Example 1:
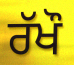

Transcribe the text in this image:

ਰੱਖੌ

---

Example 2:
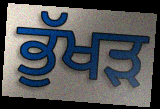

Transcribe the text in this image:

ਭੁੱਖੜ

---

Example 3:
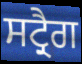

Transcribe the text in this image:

ਸਟ੍ਰੈਗ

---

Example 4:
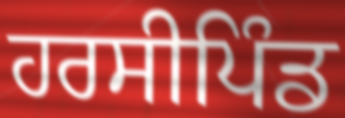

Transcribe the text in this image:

ਹਰਸੀਪਿੰਡ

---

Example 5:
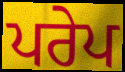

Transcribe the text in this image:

ਪਰੇਪ